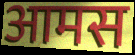
आमस